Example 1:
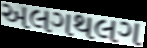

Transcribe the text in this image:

અલગથલગ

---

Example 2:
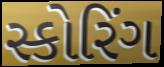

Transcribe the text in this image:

સ્કોરિંગ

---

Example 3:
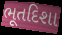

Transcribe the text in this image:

ભૂતદિશા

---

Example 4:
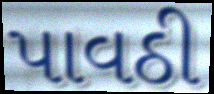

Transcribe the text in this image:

પાવઠી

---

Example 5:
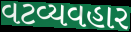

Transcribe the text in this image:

વટવ્યવહાર